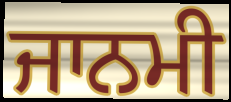
ਜਾਨਮੀ